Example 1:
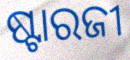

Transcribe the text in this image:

ଷ୍ଟାରଜୀ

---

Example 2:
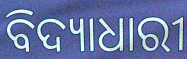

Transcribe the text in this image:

ବିଦ୍ୟାଧାରୀ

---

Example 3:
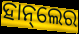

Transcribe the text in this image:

ହାନ୍‌ଲେର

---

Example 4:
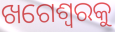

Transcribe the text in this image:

ଖଗେଶ୍ୱରକୁ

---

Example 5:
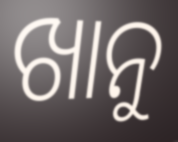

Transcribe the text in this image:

ଖାନୁ